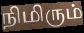
நிமிரும்